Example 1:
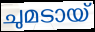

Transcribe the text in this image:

ചുമടായ്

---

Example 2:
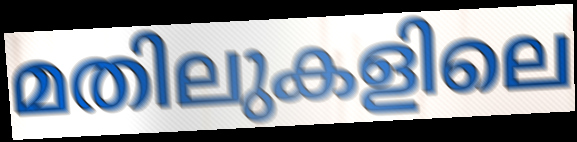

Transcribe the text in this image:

മതിലുകളിലെ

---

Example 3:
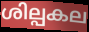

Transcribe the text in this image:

ശില്പകല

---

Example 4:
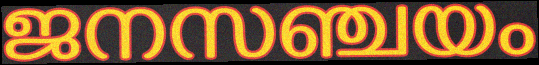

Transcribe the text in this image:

ജനസഞ്ചയം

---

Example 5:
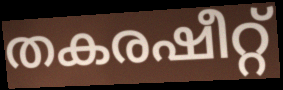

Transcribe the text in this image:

തകരഷീറ്റ്